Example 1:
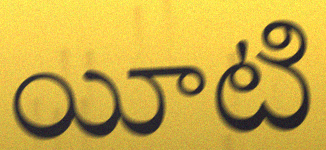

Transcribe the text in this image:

యీటి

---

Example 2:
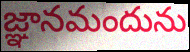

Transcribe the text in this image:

జ్ఞానమందును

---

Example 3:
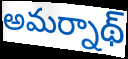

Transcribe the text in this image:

అమర్నాథ్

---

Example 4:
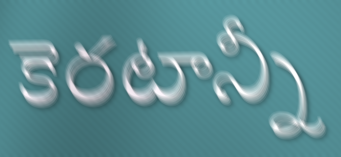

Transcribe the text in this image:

కెరటాన్నీ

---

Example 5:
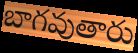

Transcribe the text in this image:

బాగవుతారు